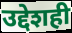
उद्देशही